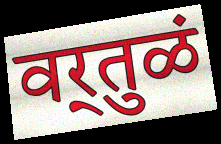
वर्तुळं